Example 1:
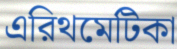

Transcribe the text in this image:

এরিথমেটিকা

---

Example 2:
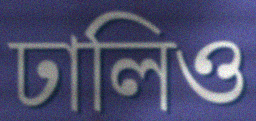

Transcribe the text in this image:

ঢালিও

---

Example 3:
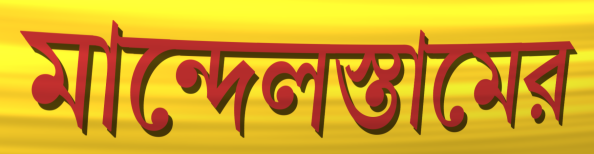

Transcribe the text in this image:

মান্দেলস্তামের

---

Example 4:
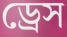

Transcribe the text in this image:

ড্রেস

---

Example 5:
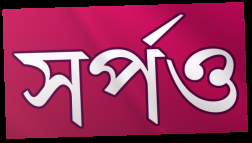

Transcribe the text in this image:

সর্পও